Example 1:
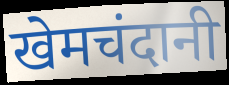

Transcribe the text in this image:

खेमचंदानी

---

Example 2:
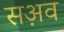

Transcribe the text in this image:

सअ़व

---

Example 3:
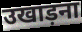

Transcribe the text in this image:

उखाड़ना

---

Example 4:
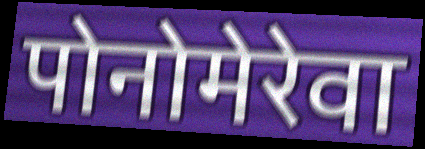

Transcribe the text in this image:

पोनोमेरेवा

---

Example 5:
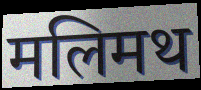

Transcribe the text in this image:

मलिमथ